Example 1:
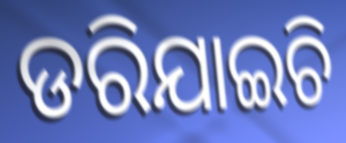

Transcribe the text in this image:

ଡରିଯାଇଚି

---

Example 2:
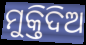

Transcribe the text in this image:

ମୁକ୍ତିଦିଅ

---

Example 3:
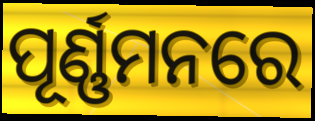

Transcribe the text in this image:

ପୂର୍ଣ୍ଣମନରେ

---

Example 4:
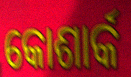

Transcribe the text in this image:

କୋଶାର୍କ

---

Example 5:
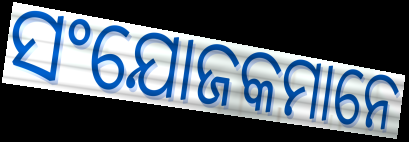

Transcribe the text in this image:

ସଂଯୋଜକମାନେ